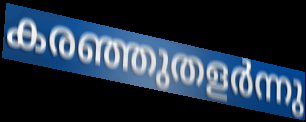
കരഞ്ഞുതളർന്നു